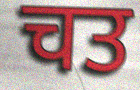
चउ